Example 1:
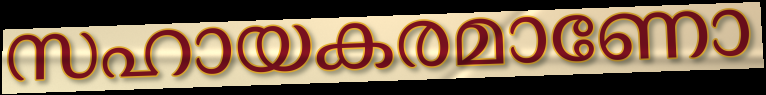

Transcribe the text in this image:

സഹായകരമാണോ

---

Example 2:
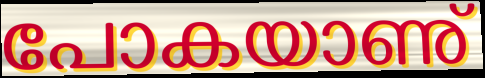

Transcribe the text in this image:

പോകയാണു്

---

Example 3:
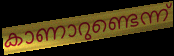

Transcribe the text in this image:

കാണാറുണ്ടെന്ന്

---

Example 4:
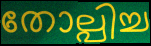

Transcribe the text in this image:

തോല്പിച്ച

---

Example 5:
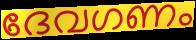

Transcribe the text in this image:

ദേവഗണം